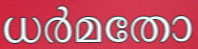
ധർമതോ